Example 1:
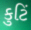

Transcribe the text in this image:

કુટિં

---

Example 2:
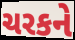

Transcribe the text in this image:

ચરકને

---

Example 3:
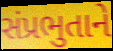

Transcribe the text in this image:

સંપ્રભુતાને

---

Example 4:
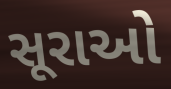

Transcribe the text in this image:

સૂરાઓ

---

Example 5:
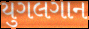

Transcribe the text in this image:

યુગલગાન